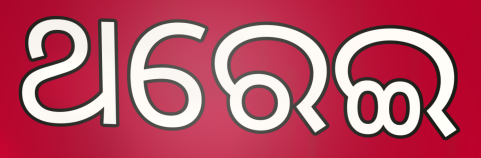
ଥରେଇ